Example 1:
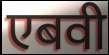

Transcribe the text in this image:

एबवी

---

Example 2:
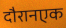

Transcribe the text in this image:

दौरानएक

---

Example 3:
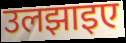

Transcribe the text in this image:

उलझाइए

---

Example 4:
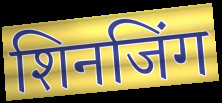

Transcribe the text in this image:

शिनजिंग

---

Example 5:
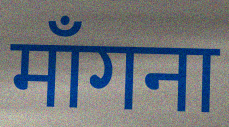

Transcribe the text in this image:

माँगना